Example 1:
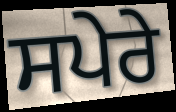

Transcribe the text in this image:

ਸਪੇਰੇ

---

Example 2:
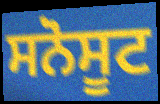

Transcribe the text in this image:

ਸਨੋਸੂਟ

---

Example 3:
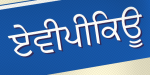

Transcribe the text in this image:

ਏਵੀਪੀਕਿਊ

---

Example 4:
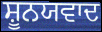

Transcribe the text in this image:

ਸ਼ੂਨਯਵਾਦ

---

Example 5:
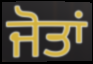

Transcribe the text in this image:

ਜੋਤਾਂ